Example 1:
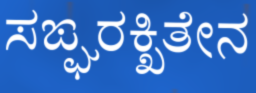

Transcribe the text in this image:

ಸಙ್ಘರಕ್ಖಿತೇನ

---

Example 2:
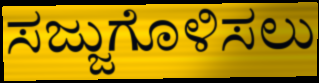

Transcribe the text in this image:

ಸಜ್ಜುಗೊಳಿಸಲು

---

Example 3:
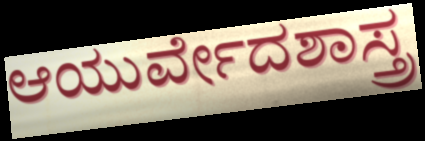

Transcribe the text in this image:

ಆಯುರ್ವೇದಶಾಸ್ತ್ರ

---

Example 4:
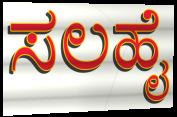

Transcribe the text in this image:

ಸಲಹೈ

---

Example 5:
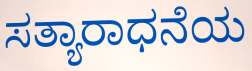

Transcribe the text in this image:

ಸತ್ಯಾರಾಧನೆಯ